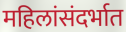
महिलांसंदर्भात